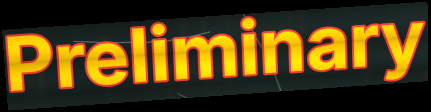
Preliminary